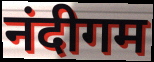
नंदीगम